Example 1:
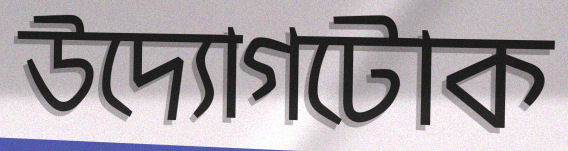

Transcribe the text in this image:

উদ্যোগটোক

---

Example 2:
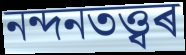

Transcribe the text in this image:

নন্দনতত্ত্বৰ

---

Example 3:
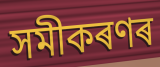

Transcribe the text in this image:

সমীকৰণৰ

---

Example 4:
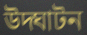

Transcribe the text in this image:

উদ্ঘাটন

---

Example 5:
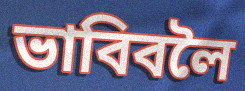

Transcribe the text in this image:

ভাবিবলৈ